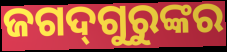
ଜଗଦ୍‌ଗୁରୁଙ୍କର